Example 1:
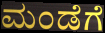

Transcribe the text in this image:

ಮಂಡೆಗೆ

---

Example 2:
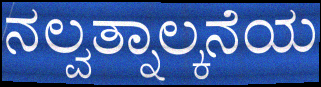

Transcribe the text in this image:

ನಲ್ವತ್ನಾಲ್ಕನೆಯ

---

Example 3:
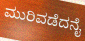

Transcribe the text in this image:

ಮುರಿವಡೆದನೈ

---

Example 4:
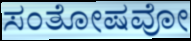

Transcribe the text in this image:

ಸಂತೋಷವೋ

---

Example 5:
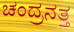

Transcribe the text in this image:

ಚಂದ್ರನತ್ತ